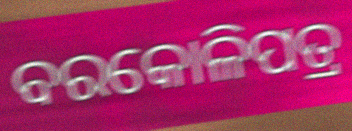
ବରକୋଳିପତ୍ର